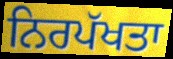
ਨਿਰਪੱਖਤਾ